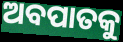
ଅବପାତକୁ